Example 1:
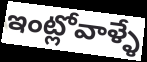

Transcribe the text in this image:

ఇంట్లోవాళ్ళే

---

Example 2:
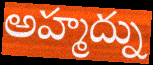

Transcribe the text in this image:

అహ్మద్ను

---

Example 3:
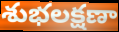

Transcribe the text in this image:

శుభలక్షణా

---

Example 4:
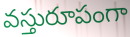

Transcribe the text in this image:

వస్తురూపంగా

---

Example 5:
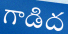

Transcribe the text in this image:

గాడిద